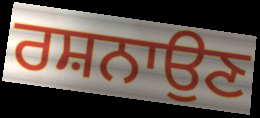
ਰਸ਼ਨਾਉਣ